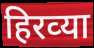
हिरव्‍या